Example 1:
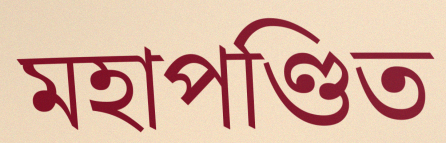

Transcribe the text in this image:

মহাপণ্ডিত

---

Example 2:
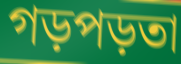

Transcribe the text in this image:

গড়পড়তা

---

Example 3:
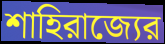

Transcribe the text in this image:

শাহিরাজ্যের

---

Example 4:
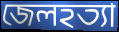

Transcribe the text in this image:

জেলহত্যা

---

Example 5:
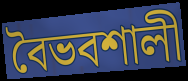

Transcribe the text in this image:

বৈভবশালী